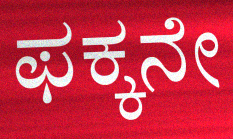
ಫಕ್ಕನೇ